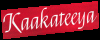
Kaakateeya